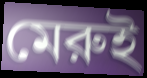
মেরুই